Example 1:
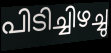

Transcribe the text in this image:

പിടിച്ചിഴച്ചു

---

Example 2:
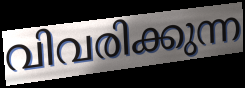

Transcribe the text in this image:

വിവരിക്കുന്ന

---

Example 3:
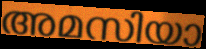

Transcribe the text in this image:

അമസിയാ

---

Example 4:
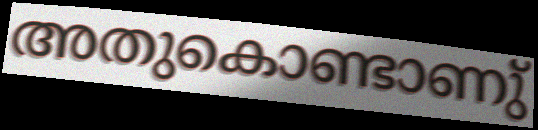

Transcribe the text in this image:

അതുകൊണ്ടാണു്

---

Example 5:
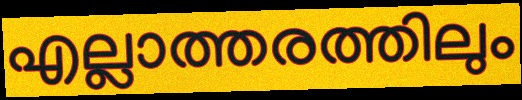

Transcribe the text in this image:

എല്ലാത്തരത്തിലും